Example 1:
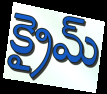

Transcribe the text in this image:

క్రైమ్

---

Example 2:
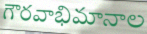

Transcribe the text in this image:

గౌరవాభిమానాల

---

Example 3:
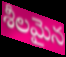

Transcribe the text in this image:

శీలమైన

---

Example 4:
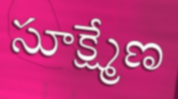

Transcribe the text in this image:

సూక్ష్మేణ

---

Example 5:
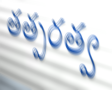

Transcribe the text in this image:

తత్పరత్వ